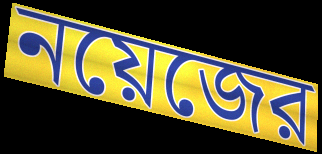
নয়েজের